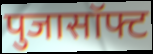
पुजासॉफ्ट